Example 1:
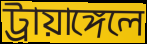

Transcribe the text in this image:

ট্রায়াঙ্গেলে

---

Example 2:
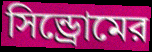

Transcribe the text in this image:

সিন্ড্রোমের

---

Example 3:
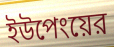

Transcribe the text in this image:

ইউপেংয়ের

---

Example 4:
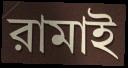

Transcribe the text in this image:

রামাই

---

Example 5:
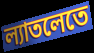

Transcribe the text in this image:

ল্যাতলেতে